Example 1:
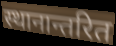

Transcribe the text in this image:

स्थानान्तरित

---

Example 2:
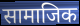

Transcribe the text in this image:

सामाजिक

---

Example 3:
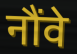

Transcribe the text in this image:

नौंवे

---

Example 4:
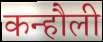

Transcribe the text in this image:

कन्हौली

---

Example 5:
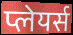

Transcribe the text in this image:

प्‍लेयर्स